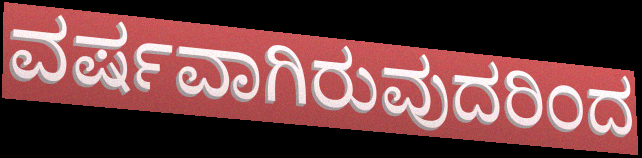
ವರ್ಷವಾಗಿರುವುದರಿಂದ